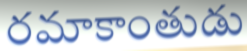
రమాకాంతుడు